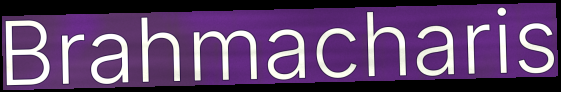
Brahmacharis